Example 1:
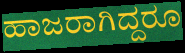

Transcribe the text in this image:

ಹಾಜರಾಗಿದ್ದರೂ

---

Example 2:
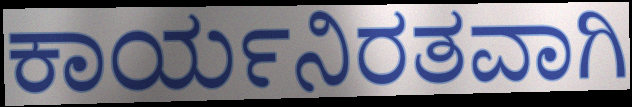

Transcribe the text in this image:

ಕಾರ್ಯನಿರತವಾಗಿ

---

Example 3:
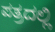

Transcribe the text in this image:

ಪತ್ರದಲ್ಲಿ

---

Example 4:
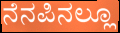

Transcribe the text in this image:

ನೆನಪಿನಲ್ಲೂ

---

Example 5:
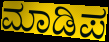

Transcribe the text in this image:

ಮಾಡಿಪ